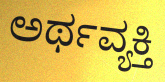
ಅರ್ಥವ್ಯಕ್ತಿ